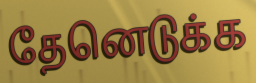
தேனெடுக்க